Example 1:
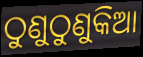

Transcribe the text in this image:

ଠୁଣୁଠୁଣୁକିଆ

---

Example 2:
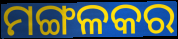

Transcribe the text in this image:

ମଙ୍ଗଳକର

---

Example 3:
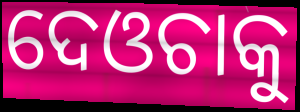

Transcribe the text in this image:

ଦେଓଚାକୁ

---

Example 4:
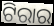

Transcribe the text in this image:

ଟିରାର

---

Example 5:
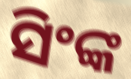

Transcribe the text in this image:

ସିଂଙ୍କ